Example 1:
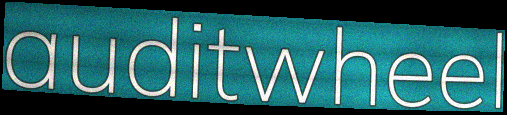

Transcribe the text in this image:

auditwheel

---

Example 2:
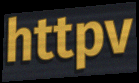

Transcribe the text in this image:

httpv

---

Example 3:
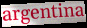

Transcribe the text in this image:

argentina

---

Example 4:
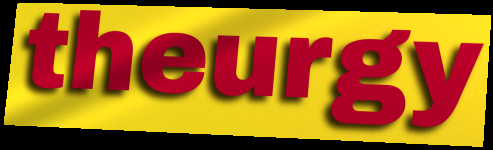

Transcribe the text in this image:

theurgy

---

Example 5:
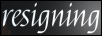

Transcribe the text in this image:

resigning